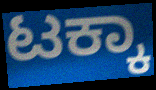
ಟಕ್ಕಾ